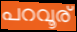
പറവൂര്